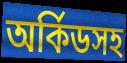
অর্কিডসহ